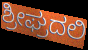
ಶ್ರೀಘ್ರದಲಿ